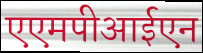
एएमपीआईएन